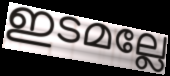
ഇടമല്ലേ